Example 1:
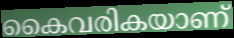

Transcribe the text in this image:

കൈവരികയാണ്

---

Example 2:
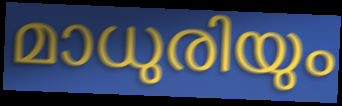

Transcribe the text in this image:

മാധുരിയും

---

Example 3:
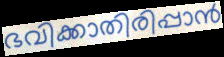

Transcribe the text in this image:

ഭവിക്കാതിരിപ്പാൻ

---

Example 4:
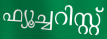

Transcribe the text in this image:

ഫ്യൂച്ചറിസ്റ്റ്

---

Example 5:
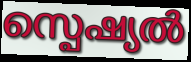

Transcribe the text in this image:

സ്പെഷ്യൽ